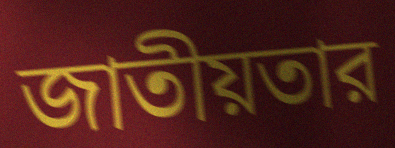
জাতীয়তার